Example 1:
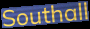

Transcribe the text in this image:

Southall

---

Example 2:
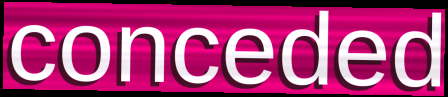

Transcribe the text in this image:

conceded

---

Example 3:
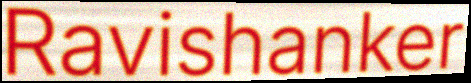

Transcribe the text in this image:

Ravishanker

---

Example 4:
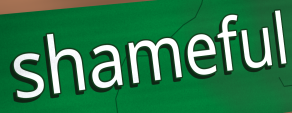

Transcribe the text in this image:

shameful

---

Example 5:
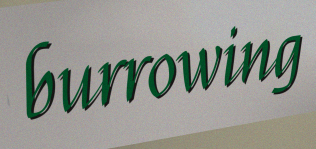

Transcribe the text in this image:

burrowing